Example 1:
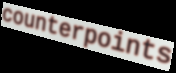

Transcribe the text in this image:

counterpoints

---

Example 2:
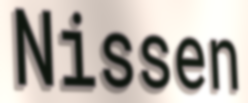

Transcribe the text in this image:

Nissen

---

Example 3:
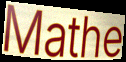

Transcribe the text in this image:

Mathe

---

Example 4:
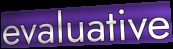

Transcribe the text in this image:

evaluative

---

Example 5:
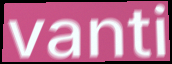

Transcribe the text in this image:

vanti